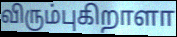
விரும்புகிறாளா